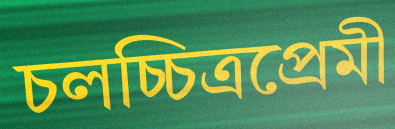
চলচ্চিত্রপ্রেমী